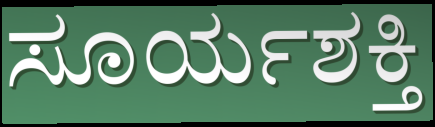
ಸೂರ್ಯಶಕ್ತಿ